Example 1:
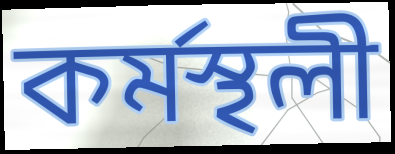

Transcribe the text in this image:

কৰ্মস্থলী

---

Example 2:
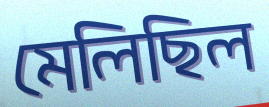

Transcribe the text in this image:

মেলিছিল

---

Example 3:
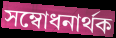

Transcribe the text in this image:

সম্বোধনাৰ্থক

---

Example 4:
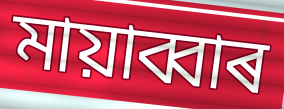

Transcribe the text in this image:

মায়াব্বাৰ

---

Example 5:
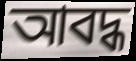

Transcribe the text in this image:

আবদ্ধ